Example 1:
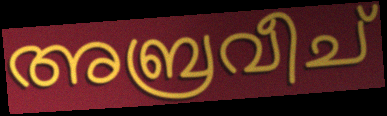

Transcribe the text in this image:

അബ്രവീച്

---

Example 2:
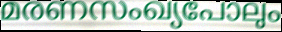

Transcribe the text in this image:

മരണസംഖ്യപോലും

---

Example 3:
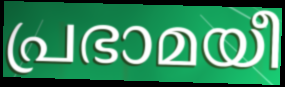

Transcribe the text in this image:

പ്രഭാമയീ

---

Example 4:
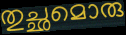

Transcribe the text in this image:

തുച്ഛമൊരു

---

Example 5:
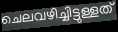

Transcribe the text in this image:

ചെലവഴിച്ചിട്ടുള്ളത്